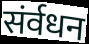
संर्वधन